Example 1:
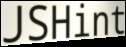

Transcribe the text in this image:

JSHint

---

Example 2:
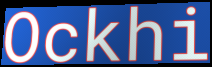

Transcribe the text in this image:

Ockhi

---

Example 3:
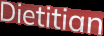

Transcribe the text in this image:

Dietitian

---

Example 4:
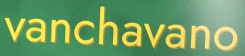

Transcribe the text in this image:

vanchavano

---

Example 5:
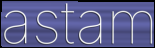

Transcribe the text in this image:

astam